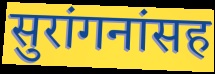
सुरांगनांसह